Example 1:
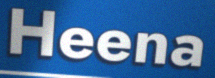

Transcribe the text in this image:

Heena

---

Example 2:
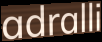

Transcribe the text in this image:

adralli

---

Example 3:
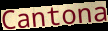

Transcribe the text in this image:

Cantona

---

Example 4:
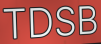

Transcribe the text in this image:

TDSB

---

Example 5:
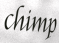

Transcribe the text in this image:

chimp